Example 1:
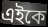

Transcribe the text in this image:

এইকে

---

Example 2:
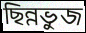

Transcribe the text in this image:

ছিন্নভুজ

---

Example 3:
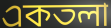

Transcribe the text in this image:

একতলা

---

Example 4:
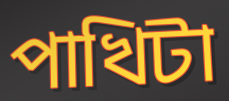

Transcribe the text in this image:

পাখিটা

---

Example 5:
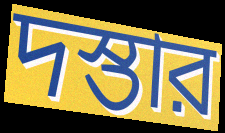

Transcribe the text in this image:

দস্তার